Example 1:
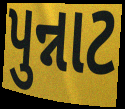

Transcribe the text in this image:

પુન્નાટ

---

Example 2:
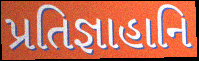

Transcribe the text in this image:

પ્રતિજ્ઞાહાનિ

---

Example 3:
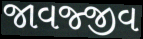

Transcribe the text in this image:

જાવજ્જીવ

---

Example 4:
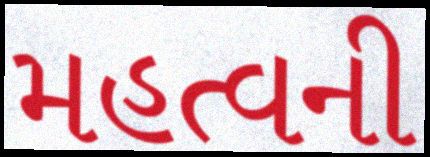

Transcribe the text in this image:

મહત્વની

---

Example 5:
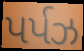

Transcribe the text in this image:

પર્પઝ